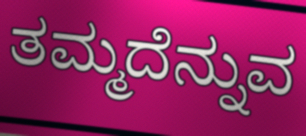
ತಮ್ಮದೆನ್ನುವ